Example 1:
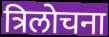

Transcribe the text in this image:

त्रिलोचना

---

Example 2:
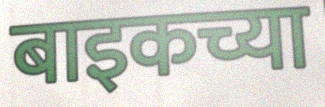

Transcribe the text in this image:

बाइकच्या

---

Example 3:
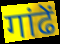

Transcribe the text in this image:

गांढें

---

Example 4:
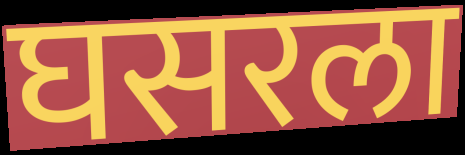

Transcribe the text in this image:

घसरला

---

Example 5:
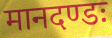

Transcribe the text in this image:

मानदण्डः